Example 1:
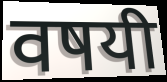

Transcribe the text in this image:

वषयी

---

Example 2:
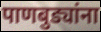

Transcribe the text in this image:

पाणबुड्यांना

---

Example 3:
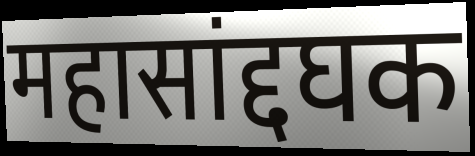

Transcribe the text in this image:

महासांद्दघक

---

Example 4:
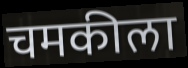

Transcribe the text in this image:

चमकीला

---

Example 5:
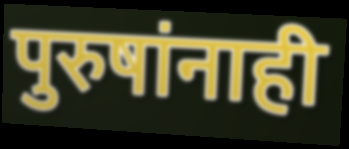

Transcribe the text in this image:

पुरुषांनाही